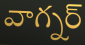
వాగ్నర్